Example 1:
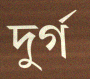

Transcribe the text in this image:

দুর্গ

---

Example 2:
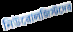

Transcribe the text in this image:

নিউরোলজিস্টদের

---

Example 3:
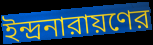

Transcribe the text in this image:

ইন্দ্রনারায়ণের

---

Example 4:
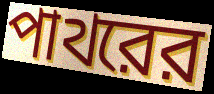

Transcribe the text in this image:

পাথরের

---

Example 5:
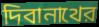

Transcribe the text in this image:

দিবানাথের